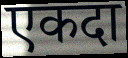
एकदा